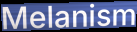
Melanism